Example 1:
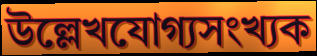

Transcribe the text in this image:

উল্লেখযোগ্যসংখ্যক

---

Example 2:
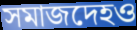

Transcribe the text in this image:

সমাজদেহও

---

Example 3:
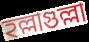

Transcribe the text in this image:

হল্লাগুল্লা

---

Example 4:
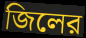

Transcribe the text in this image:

জিলের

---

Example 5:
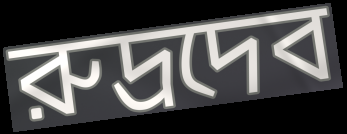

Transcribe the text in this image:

রুদ্রদেব